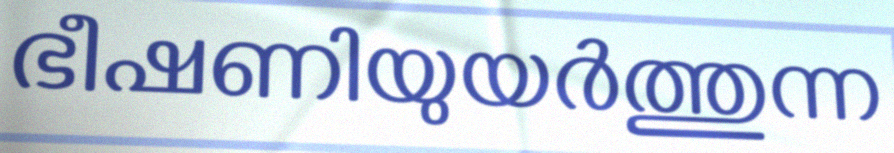
ഭീഷണിയുയർത്തുന്ന